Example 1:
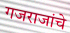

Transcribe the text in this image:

गजराजांचे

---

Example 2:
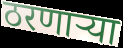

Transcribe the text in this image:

ठरणाऱ्या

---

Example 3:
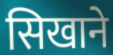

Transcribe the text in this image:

सिखाने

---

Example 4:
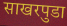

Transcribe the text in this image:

साखरपुडा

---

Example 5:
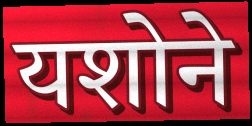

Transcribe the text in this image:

यशोने